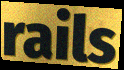
rails